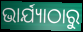
ଭାର୍ଯ୍ୟାଠାରୁ